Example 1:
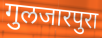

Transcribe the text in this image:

गुलजारपुरा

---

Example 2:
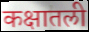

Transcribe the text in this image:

कक्षातली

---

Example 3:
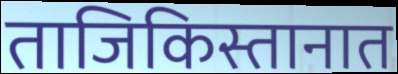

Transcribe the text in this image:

ताजिकिस्तानात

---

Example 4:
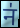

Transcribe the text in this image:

न॑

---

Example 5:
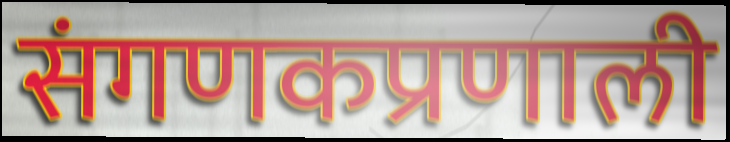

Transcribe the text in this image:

संगणकप्रणाली